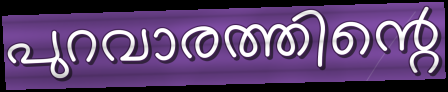
പുറവാരത്തിന്റെ